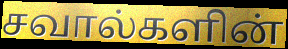
சவால்களின்